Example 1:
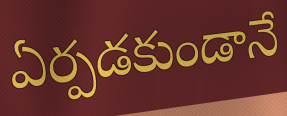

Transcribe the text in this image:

ఏర్పడకుండానే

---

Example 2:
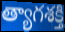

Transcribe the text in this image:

త్యాగశక్తి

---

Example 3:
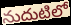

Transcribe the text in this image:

నుదుటిలో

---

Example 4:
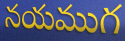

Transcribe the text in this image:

నయముగ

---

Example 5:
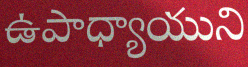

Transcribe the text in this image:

ఉపాధ్యాయుని